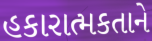
હકારાત્મકતાને